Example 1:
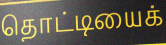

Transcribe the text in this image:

தொட்டியைக்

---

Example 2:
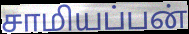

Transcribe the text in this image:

சாமியப்பன்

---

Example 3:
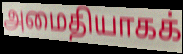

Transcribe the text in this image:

அமைதியாகக்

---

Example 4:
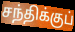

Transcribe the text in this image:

சந்திக்குப்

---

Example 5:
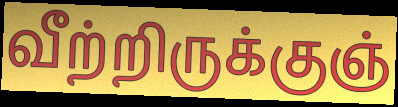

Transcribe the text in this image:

வீற்றிருக்குஞ்